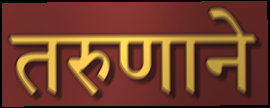
तरुणाने